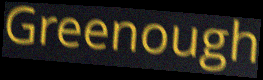
Greenough